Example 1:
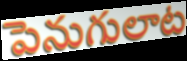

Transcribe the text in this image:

పెనుగులాట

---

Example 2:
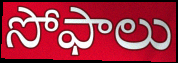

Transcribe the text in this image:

సోఫాలు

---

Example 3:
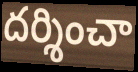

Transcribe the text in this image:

దర్శించా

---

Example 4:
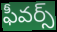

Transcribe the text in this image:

ఫీవర్స్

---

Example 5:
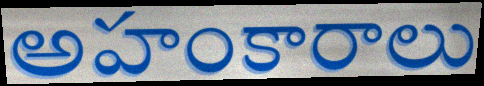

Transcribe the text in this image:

అహంకారాలు